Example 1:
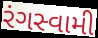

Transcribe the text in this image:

રંગસ્વામી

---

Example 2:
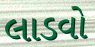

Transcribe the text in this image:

લાડવો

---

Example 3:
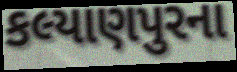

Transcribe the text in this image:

કલ્યાણપુરના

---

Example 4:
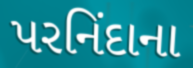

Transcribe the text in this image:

પરનિંદાના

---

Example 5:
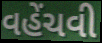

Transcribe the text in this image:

વહેંચવી